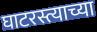
घाटरस्त्याच्या